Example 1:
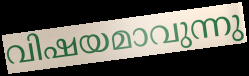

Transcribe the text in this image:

വിഷയമാവുന്നു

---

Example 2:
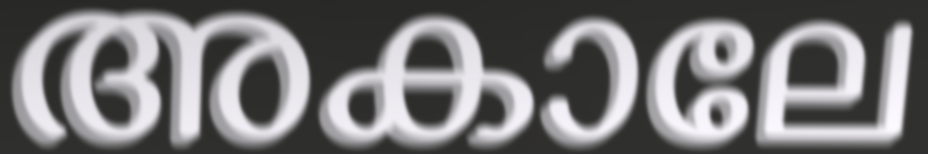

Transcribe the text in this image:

അകാലേ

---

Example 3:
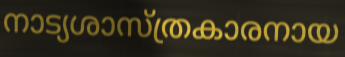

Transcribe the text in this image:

നാട്യശാസ്ത്രകാരനായ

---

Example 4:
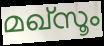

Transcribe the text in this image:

മഖ്സൂം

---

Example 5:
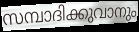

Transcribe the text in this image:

സമ്പാദിക്കുവാനും